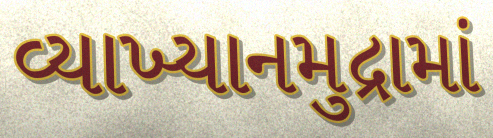
વ્યાખ્યાનમુદ્રામાં